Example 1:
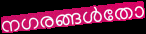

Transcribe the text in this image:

നഗരങ്ങൾതോ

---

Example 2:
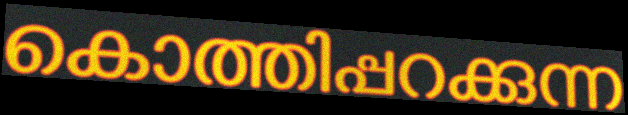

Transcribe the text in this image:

കൊത്തിപ്പറക്കുന്ന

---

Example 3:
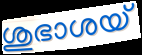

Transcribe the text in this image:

ശുഭാശയ്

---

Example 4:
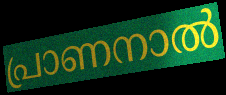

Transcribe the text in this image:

പ്രാണനാൽ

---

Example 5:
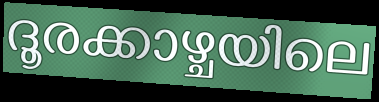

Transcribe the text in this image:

ദൂരക്കാഴ്ചയിലെ